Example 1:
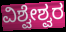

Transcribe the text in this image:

ವಿಶ್ವೇಶ್ವರ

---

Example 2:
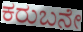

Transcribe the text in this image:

ಕರುಬನೇ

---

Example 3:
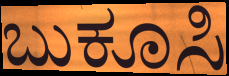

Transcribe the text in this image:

ಬುಕೂಸಿ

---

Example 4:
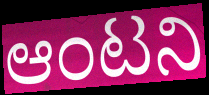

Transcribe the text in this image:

ಆಂಟನಿ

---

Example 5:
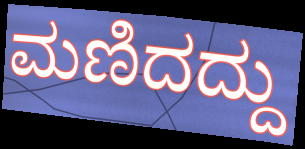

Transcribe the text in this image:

ಮಣಿದದ್ದು